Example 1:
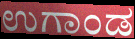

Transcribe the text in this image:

ಉಗಾಂಡ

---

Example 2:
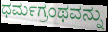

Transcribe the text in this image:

ಧರ್ಮಗ್ರಂಥವನ್ನು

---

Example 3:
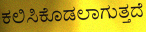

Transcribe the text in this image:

ಕಲಿಸಿಕೊಡಲಾಗುತ್ತದೆ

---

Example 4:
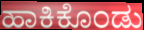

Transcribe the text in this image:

ಹಾಕಿಕೊಂಡು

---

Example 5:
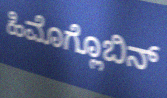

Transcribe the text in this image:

ಹಿಮೊಗ್ಲೊಬಿನ್